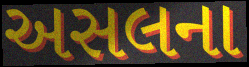
અસલના